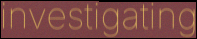
investigating